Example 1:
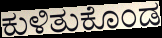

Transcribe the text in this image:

ಕುಳಿತುಕೊಂಡ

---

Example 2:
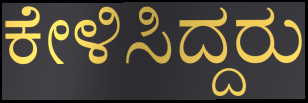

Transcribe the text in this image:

ಕೇಳಿಸಿದ್ದರು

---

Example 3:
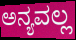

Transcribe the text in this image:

ಅನ್ಯವಲ್ಲ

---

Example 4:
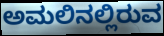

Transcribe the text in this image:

ಅಮಲಿನಲ್ಲಿರುವ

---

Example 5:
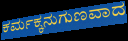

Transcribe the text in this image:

ಕರ್ಮಕ್ಕನುಗುಣವಾದ